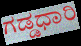
ಗಡ್ಡಧಾರಿ